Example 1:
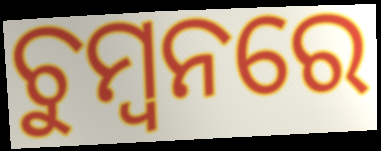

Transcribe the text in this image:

ଚୁମ୍ବନରେ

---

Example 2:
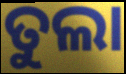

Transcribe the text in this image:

ତୁଲା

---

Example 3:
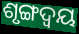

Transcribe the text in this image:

ଶୃଙ୍ଗଦ୍ୱୟ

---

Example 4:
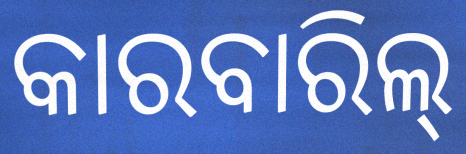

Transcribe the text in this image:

କାରବାରିଲ୍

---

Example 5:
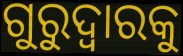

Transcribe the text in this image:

ଗୁରୁଦ୍ୱାରକୁ